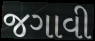
જગાવી